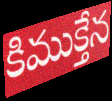
కిముక్తేన